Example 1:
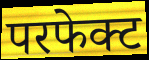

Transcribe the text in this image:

परफेक्ट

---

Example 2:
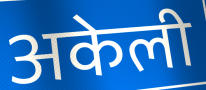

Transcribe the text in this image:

अकेली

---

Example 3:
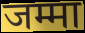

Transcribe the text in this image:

जम्मा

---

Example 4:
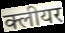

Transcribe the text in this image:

क्लीयर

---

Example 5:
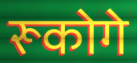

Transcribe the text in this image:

रूकोगे